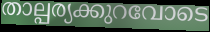
താല്പര്യക്കുറവോടെ